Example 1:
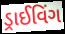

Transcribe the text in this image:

ડ્રાઈવિંગ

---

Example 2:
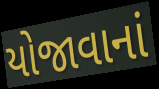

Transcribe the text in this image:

યોજાવાનાં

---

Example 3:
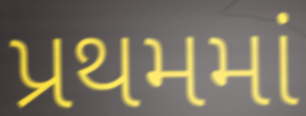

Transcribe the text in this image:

પ્રથમમાં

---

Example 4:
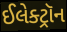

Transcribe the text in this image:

ઈલેક્ટ્રૉન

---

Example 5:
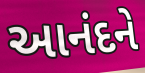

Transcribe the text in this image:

આનંદને